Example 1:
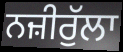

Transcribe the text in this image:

ਨਜ਼ੀਰੁੱਲਾ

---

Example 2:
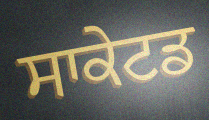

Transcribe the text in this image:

ਸਾਕੇਟਡ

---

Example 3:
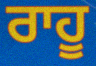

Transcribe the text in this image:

ਰਾਹੂ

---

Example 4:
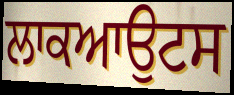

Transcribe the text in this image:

ਲਾਕਆਉਟਸ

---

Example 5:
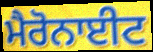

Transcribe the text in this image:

ਮੈਰੋਨਾਈਟ